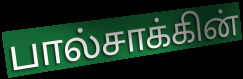
பால்சாக்கின்